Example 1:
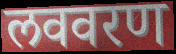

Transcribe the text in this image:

लववरण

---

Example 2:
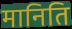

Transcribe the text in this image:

मानिति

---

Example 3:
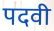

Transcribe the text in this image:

पदवी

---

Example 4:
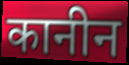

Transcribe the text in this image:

कानीन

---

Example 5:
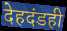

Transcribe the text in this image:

देहदंडही